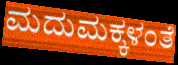
ಮದುಮಕ್ಕಳಂತೆ